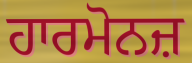
ਹਾਰਮੋਨਜ਼